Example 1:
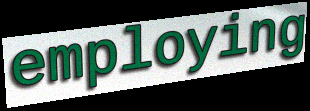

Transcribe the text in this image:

employing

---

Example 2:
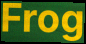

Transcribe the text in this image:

Frog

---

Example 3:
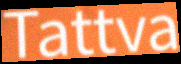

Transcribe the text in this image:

Tattva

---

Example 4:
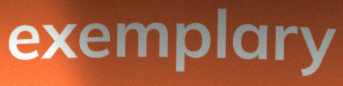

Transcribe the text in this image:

exemplary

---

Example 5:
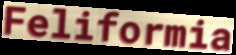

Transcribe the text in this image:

Feliformia